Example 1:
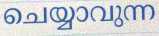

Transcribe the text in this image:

ചെയ്യാവുന്ന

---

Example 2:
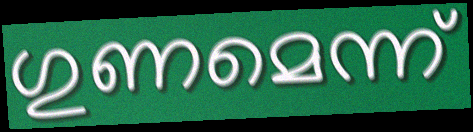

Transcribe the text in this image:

ഗുണമെന്ന്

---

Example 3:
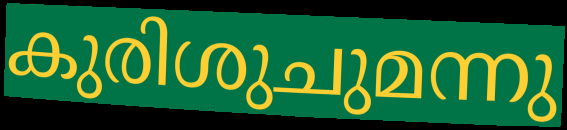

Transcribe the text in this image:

കുരിശുചുമന്നു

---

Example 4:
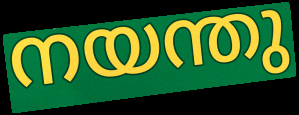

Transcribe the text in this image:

നയന്തു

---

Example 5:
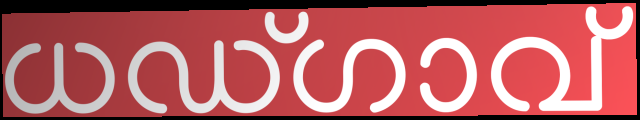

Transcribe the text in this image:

ധഡ്ഗാവ്